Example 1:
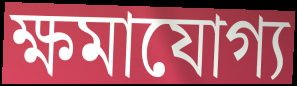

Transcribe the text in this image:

ক্ষমাযোগ্য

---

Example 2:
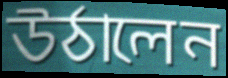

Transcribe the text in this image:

উঠালেন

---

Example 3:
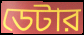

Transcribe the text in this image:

ডেটার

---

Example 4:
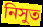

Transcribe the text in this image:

নিসুত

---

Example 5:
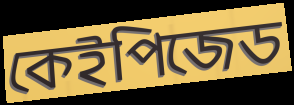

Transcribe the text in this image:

কেইপিজেড